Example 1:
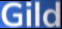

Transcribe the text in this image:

Gild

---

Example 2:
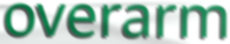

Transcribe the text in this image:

overarm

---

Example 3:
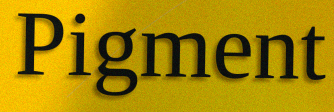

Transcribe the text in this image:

Pigment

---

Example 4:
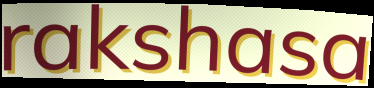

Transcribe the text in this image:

rakshasa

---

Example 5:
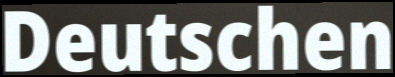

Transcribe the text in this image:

Deutschen